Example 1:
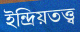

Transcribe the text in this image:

ইন্দ্রিয়তত্ত্ব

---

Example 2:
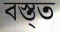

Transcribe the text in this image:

বস্ত্ত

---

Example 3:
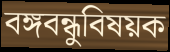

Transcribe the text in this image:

বঙ্গবন্ধুবিষয়ক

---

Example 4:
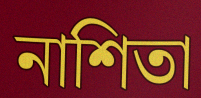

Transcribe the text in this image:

নাশিতা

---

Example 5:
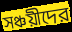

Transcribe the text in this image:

সঞ্চয়ীদের